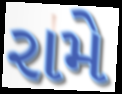
રામે